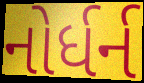
નોર્ધર્ન